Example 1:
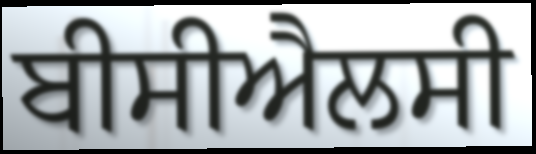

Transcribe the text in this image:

ਬੀਸੀਐਲਸੀ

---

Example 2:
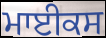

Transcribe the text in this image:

ਮਾਈਕਸ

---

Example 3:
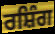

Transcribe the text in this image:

ਰਸ਼ਿੰਗ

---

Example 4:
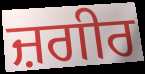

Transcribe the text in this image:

ਜ਼ਗੀਰ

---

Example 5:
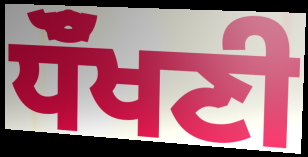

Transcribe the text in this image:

ਧੌਁਖਣੀ